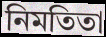
নিমতিতা